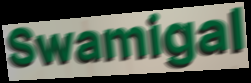
Swamigal